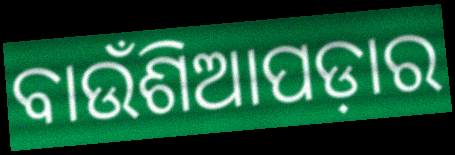
ବାଉଁଶିଆପଡ଼ାର